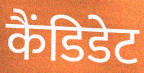
कैंडिडेट